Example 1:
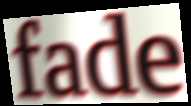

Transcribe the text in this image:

fade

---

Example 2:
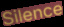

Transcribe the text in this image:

Silence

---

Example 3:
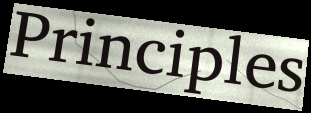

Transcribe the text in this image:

Principles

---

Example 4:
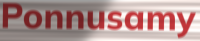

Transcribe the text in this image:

Ponnusamy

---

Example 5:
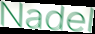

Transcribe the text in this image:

Nadel